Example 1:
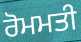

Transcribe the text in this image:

ਰੋਮਮਤੀ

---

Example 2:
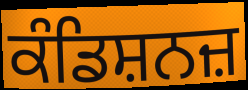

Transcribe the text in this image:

ਕੰਡਿਸ਼ਨਜ਼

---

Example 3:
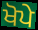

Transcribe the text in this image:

ਖੋਪੇ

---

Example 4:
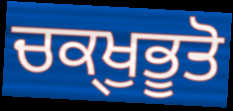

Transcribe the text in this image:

ਚਕ੍ਖੁਭੂਤੋ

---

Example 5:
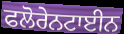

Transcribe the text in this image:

ਫਲੋਰੇਨਟਾਈਨ